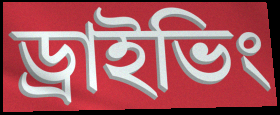
ড্রাইভিং